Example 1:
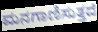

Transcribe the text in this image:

ಮನಗಾಣಿಸುತ್ತದೆ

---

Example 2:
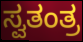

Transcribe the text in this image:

ಸ್ವತಂತ್ರ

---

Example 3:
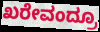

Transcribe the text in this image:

ಖರೇವಂದ್ರೂ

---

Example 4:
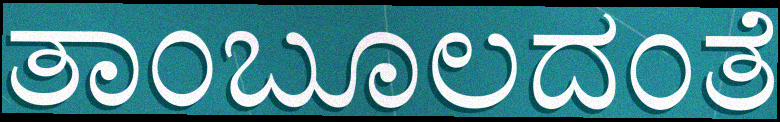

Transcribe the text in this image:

ತಾಂಬೂಲದಂತೆ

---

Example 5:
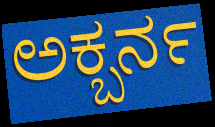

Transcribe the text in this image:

ಅಕ್ಬರ್ನ